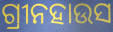
ଗ୍ରୀନହାଉସ